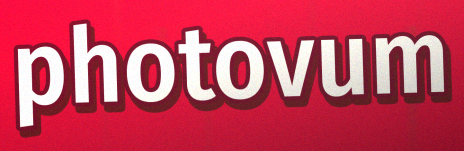
photovum